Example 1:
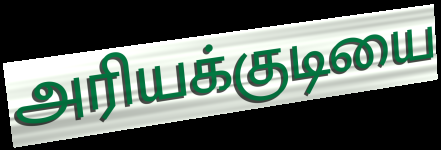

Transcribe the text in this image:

அரியக்குடியை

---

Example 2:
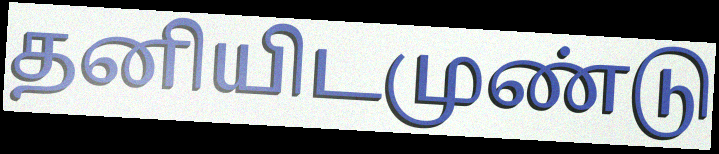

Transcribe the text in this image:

தனியிடமுண்டு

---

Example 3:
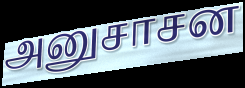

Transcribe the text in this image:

அனுசாசன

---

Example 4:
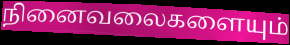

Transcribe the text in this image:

நினைவலைகளையும்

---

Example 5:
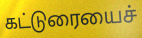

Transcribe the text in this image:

கட்டுரையைச்